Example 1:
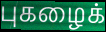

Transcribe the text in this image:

புகழைக்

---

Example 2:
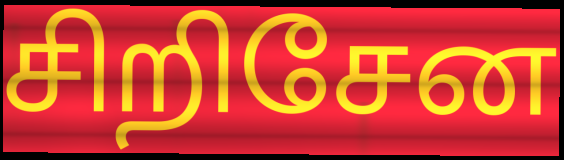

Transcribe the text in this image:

சிறிசேன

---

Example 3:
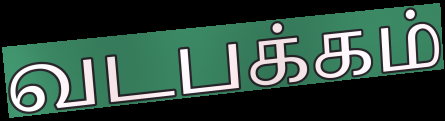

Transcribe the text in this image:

வடபக்கம்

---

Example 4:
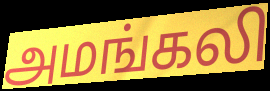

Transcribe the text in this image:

அமங்கலி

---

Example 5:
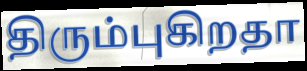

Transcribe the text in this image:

திரும்புகிறதா